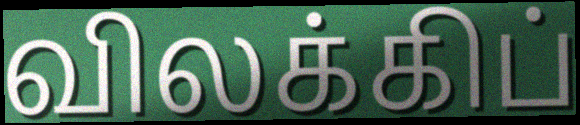
விலக்கிப்